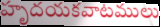
హృదయకవాటములు